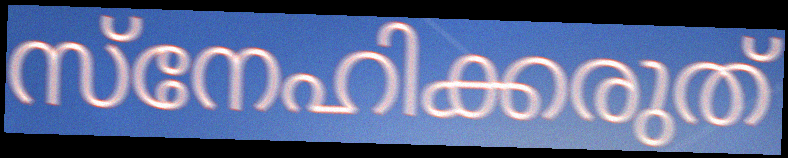
സ്നേഹിക്കരുത്